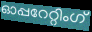
ഓപ്പറേറ്റിംഗ്